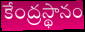
కేంద్రస్థానం